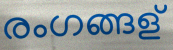
രംഗങ്ങള്